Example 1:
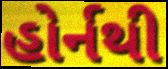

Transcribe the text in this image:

હોર્નથી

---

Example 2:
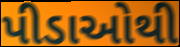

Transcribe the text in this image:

પીડાઓથી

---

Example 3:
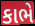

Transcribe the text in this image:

કાભે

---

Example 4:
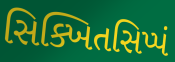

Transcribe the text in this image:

સિક્ખિતસિપ્પં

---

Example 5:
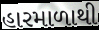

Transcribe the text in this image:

હારમાળાથી